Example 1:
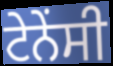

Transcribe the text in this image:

ਟੇਨੇਂਸੀ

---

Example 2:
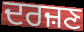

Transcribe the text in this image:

ਦਰਜ਼ਣ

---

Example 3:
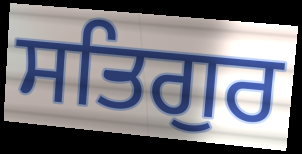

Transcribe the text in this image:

ਸਤਿਗੁਰ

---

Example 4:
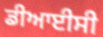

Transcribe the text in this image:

ਡੀਆਈਸੀ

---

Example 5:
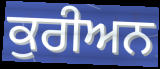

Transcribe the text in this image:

ਕੁਰੀਅਨ